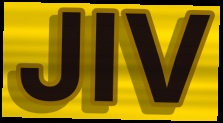
JIV